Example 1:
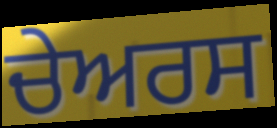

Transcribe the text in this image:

ਚੇਅਰਸ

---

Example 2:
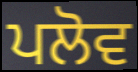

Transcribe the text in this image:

ਪਲੋਵ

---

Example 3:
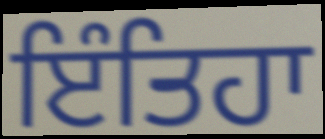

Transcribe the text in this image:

ਇੰਤਿਹਾ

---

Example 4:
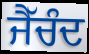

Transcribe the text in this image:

ਜੈੱਚੰਦ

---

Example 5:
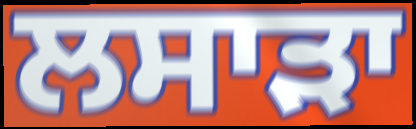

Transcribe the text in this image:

ਲਸਾੜਾ